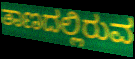
ತಾಣದಲ್ಲಿರುವ